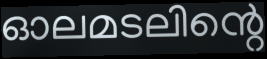
ഓലമടലിന്റെ